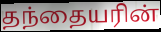
தந்தையரின்